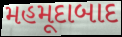
મહમૂદાબાદ